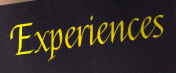
Experiences